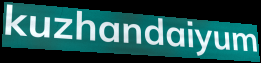
kuzhandaiyum